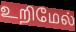
உறிமேல்